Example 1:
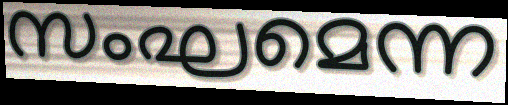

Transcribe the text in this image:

സംഘമെന്ന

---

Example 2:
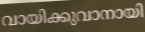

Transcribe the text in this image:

വായിക്കുവാനായി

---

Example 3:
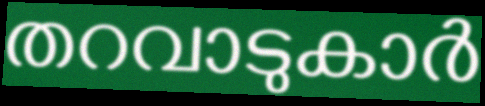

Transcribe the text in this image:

തറവാടുകാർ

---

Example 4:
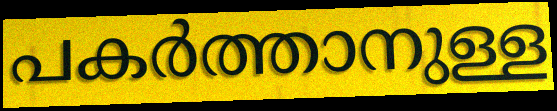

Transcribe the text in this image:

പകർത്താനുള്ള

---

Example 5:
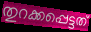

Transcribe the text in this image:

തുറക്കപ്പെട്ടത്